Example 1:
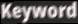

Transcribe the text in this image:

Keyword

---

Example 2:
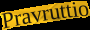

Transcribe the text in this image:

Pravruttio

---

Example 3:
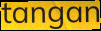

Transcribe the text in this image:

tangan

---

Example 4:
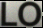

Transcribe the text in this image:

LO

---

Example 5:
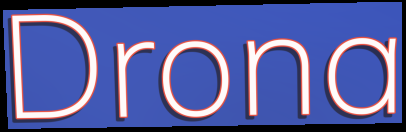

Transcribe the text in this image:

Drona